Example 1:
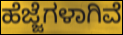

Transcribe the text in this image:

ಹೆಜ್ಜೆಗಳಾಗಿವೆ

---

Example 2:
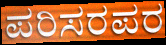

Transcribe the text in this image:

ಪರಿಸರಪರ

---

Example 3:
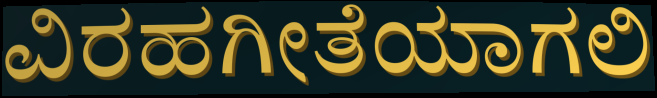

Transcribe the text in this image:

ವಿರಹಗೀತೆಯಾಗಲಿ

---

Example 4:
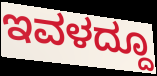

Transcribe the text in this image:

ಇವಳದ್ದೂ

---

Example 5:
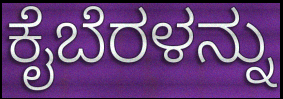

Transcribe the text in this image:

ಕೈಬೆರಳನ್ನು